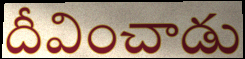
దీవించాడు